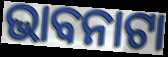
ଭାବନାଟା